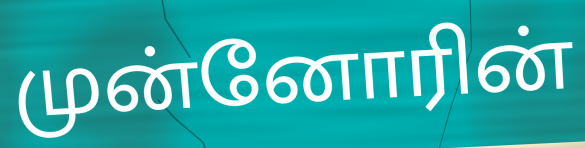
முன்னோரின்